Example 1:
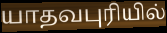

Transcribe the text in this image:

யாதவபுரியில்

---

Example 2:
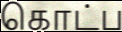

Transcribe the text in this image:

கொட்ப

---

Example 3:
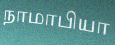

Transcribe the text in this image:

நாமாபியா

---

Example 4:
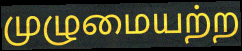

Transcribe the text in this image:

முழுமையற்ற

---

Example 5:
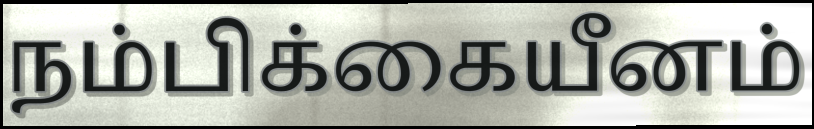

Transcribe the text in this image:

நம்பிக்கையீனம்